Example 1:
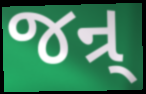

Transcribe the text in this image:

જન્ર્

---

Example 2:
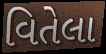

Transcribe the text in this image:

વિતેલા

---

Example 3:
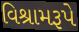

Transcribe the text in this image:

વિશ્રામરૂપે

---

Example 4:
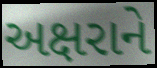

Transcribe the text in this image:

અક્ષરાને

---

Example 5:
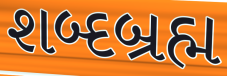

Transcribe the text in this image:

શબ્દબ્રહ્મ